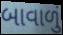
બાવાળું